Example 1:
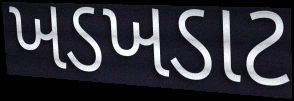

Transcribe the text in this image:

ખડખડાટ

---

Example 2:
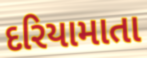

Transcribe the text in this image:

દરિયામાતા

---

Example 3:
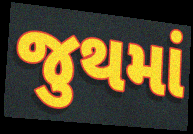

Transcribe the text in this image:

જુથમાં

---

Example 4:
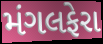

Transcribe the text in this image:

મંગલફેરા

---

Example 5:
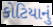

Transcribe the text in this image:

કોટિયાનું